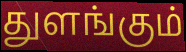
துளங்கும்